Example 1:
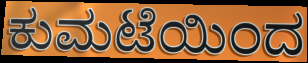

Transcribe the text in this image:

ಕುಮಟೆಯಿಂದ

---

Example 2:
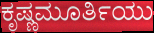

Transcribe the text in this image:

ಕೃಷ್ಣಮೂರ್ತಿಯು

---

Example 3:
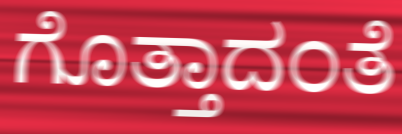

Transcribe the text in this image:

ಗೊತ್ತಾದಂತೆ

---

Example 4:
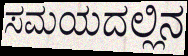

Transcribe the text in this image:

ಸಮಯದಲ್ಲಿನ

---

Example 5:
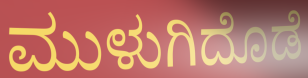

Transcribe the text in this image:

ಮುಳುಗಿದೊಡೆ